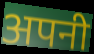
अपनी